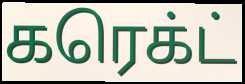
கரெக்ட்